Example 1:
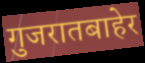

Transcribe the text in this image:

गुजरातबाहेर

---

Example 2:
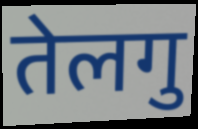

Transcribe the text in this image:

तेलगु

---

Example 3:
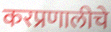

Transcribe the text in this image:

करप्रणालीचे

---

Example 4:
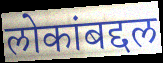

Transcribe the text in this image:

लोकांबद्दल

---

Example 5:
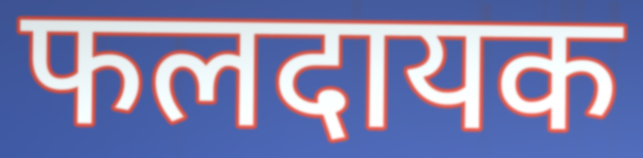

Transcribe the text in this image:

फलदायक